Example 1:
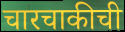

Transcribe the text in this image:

चारचाकीची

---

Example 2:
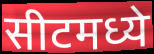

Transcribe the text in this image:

सीटमध्ये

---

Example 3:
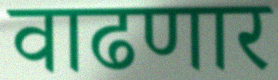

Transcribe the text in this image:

वाढणार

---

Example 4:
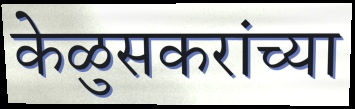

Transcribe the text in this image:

केळुसकरांच्या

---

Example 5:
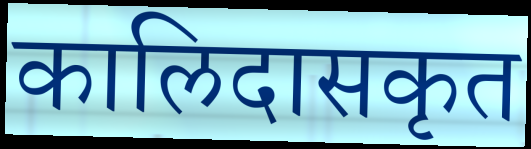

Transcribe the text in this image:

कालिदासकृत